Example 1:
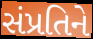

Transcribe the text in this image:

સંપ્રતિને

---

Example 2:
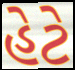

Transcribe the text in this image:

હેટે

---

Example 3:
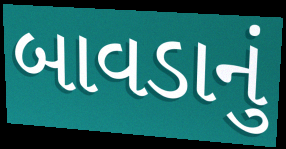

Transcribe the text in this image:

બાવડાનું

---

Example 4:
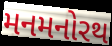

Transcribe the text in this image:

મનમનોરથ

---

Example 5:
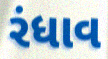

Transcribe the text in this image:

રંધાવ